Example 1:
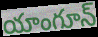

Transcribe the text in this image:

యాంగూన్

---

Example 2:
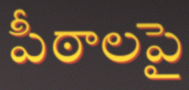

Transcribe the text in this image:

పీఠాలపై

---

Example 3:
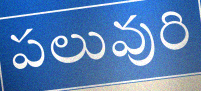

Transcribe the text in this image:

పలువురి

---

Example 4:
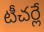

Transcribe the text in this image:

టీచర్లే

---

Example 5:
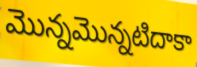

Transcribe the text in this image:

మొన్నమొన్నటిదాకా